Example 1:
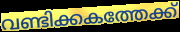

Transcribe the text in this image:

വണ്ടിക്കകത്തേക്ക്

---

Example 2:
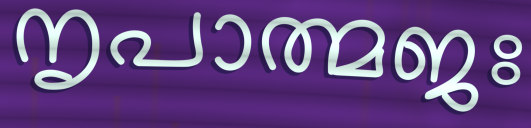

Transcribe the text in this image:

നൃപാത്മജഃ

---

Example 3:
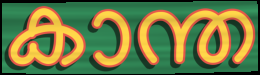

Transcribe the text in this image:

കാന്ത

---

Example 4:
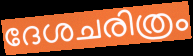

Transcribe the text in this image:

ദേശചരിത്രം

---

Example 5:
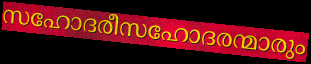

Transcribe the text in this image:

സഹോദരീസഹോദരന്മാരും